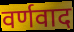
वर्णवाद